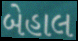
બેહાલ